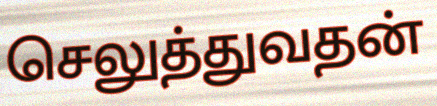
செலுத்துவதன்